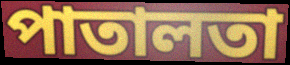
পাতালতা